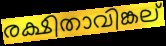
രക്ഷിതാവിങ്കല്